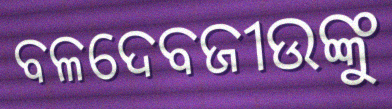
ବଳଦେବଜୀଉଙ୍କୁ